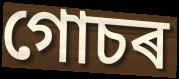
গোচৰ